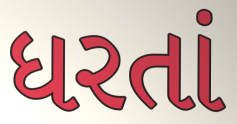
ધરતાં